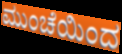
ಮುಂಚೆಯಿಂದ